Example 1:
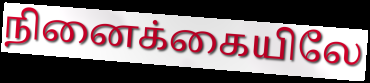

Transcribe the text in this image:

நினைக்கையிலே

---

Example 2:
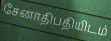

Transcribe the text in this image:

சேனாதிபதியிடம்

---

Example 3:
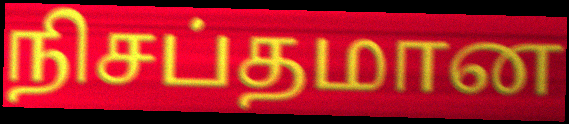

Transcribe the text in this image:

நிசப்தமான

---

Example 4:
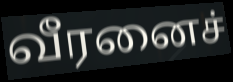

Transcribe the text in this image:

வீரனைச்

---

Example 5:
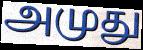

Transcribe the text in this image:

அமுது